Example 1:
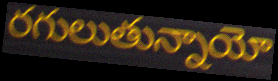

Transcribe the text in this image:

రగులుతున్నాయో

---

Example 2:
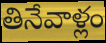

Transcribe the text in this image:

తినేవాళ్లం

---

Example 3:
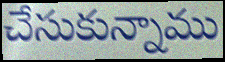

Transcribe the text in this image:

చేసుకున్నాము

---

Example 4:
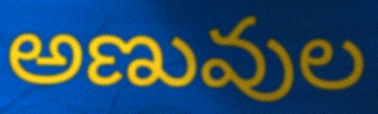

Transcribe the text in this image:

అణువుల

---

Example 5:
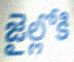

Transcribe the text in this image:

జైల్లోకి